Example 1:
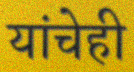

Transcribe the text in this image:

यांचेही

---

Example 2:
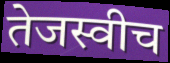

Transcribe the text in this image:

तेजस्वीच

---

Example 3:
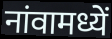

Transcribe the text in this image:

नांवामध्यें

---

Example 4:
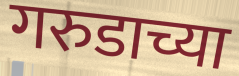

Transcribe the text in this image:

गरुडाच्या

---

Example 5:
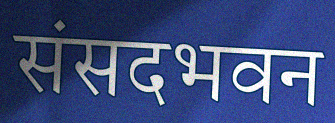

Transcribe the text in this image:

संसदभवन